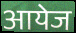
आयेज